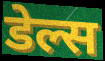
डेल्स